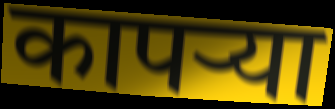
कापर्‍या